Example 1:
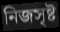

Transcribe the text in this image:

নিজসৃষ্ট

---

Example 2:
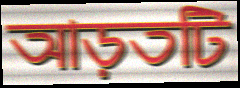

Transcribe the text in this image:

আড়তটি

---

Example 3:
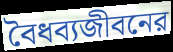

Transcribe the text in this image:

বৈধব্যজীবনের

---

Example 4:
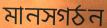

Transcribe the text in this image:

মানসগঠন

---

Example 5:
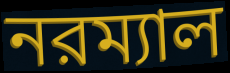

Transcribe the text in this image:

নরম্যাল